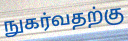
நுகர்வதற்கு